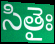
సితైః